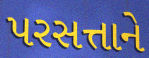
પરસત્તાને